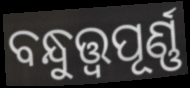
ବନ୍ଧୁତ୍ତ୍ୱପୂର୍ଣ୍ଣ